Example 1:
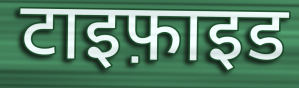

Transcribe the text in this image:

टाइफ़ाइड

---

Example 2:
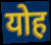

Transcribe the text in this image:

योह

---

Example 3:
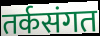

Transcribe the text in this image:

तर्कसंगत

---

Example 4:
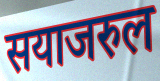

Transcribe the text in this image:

सयाजरुल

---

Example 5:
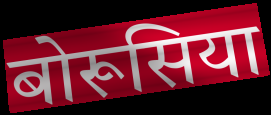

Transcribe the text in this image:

बोरूसिया